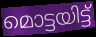
മൊട്ടയിട്ട്